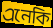
এনেকি